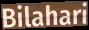
Bilahari